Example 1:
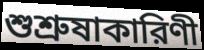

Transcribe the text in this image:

শুশ্রুষাকারিণী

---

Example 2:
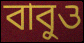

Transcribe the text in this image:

বাবুও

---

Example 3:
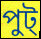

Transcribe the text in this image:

পুট্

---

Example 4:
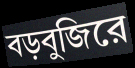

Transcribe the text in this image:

বড়বুজিরে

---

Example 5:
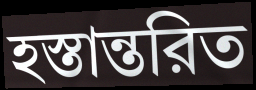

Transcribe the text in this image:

হস্তান্তরিত